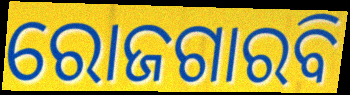
ରୋଜଗାରବି